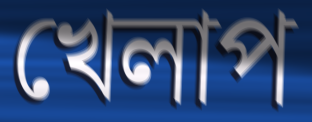
খেলাপ